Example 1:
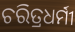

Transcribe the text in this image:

ଚରିତ୍ରଧର୍ମୀ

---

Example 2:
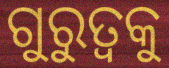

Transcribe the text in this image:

ଗୁରୁତ୍ୱକୁ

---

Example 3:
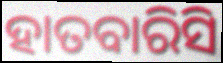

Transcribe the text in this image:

ହାତବାରିସି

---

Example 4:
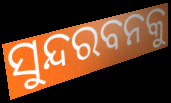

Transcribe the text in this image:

ସୁନ୍ଦରବନକୁ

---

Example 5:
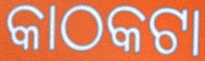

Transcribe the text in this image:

କାଠକଟା